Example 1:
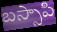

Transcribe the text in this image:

బస్సాపి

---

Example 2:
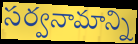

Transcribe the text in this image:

సర్వనామాన్ని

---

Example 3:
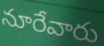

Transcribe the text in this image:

నూరేవారు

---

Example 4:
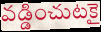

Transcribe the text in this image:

వడ్డించుటకై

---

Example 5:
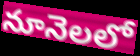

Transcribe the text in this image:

నూనెలలో